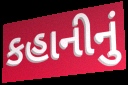
કહાનીનું